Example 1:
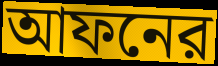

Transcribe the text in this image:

আফনের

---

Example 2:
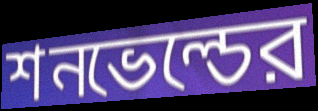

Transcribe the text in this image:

শনভেল্ডের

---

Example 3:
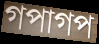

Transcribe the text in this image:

গপাগপ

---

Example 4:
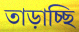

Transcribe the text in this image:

তাড়াচ্ছি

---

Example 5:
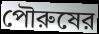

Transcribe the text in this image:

পৌরুষের